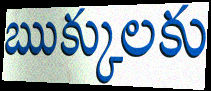
ఋక్కులకు